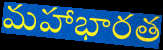
మహాభారత